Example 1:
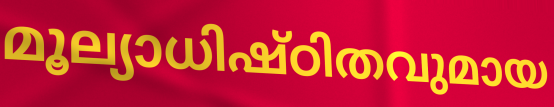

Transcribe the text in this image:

മൂല്യാധിഷ്ഠിതവുമായ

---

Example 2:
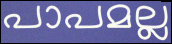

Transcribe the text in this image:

പാപമല്ല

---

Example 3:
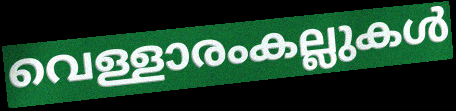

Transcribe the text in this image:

വെള്ളാരംകല്ലുകൾ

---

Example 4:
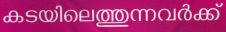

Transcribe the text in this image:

കടയിലെത്തുന്നവർക്ക്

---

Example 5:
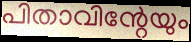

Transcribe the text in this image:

പിതാവിന്റേയും